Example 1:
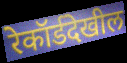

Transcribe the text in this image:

रेकॉर्डदेखील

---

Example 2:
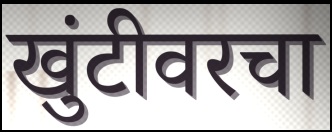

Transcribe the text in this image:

खुंटीवरचा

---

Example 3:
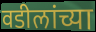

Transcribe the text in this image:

वडीलांच्या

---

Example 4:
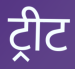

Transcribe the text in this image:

ट्रीट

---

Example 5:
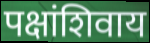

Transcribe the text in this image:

पक्षांशिवाय